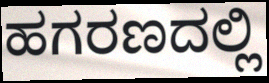
ಹಗರಣದಲ್ಲಿ